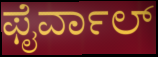
ಫೈರ್ವಾಲ್